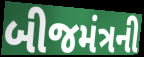
બીજમંત્રની